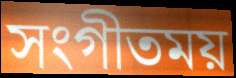
সংগীতময়